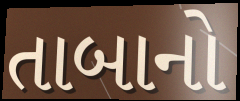
તાબાનો